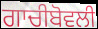
ਗਾਚੀਬੋਵਲੀ